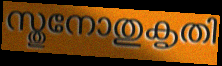
സ്തുനോതുകൃതി